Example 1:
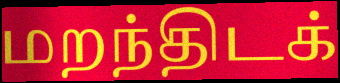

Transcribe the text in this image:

மறந்திடக்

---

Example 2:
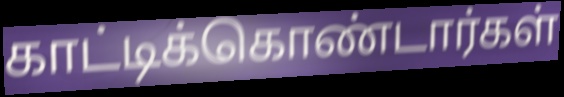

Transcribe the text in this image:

காட்டிக்கொண்டார்கள்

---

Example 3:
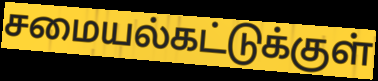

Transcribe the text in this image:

சமையல்கட்டுக்குள்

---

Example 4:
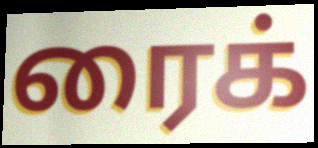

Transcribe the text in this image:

ரைக்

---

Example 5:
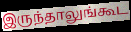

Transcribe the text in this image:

இருந்தாலுங்கூட